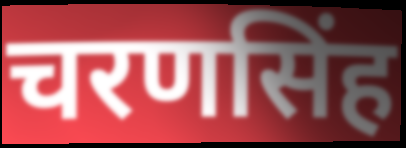
चरणसिंह